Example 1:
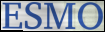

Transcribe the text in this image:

ESMO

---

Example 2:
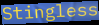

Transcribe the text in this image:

Stingless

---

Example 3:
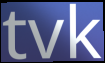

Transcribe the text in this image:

tvk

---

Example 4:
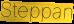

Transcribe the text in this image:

Steppan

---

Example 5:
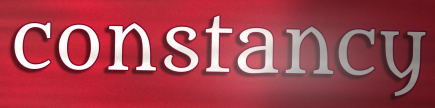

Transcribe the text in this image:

constancy